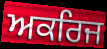
ਅਕਰਿਜ